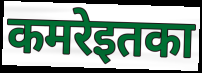
कमरेइतका